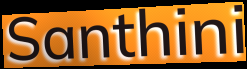
Santhini